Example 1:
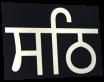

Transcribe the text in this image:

ਸਠਿ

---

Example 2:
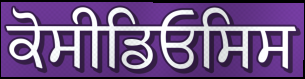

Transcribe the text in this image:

ਕੋਸੀਡਿਓਸਿਸ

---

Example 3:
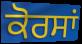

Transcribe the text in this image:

ਕੋਰਸਾਂ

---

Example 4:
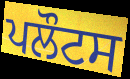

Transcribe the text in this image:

ਪਲੌਟਸ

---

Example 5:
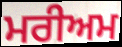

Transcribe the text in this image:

ਮਰੀਅਮ